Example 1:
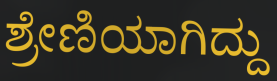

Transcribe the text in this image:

ಶ್ರೇಣಿಯಾಗಿದ್ದು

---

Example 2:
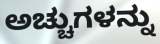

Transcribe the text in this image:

ಅಚ್ಚುಗಳನ್ನು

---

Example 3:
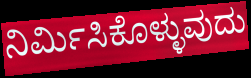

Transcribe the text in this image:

ನಿರ್ಮಿಸಿಕೊಳ್ಳುವುದು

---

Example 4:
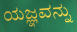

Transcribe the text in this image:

ಯಜ್ಞವನ್ನು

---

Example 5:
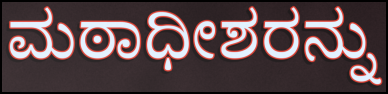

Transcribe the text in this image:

ಮಠಾಧೀಶರನ್ನು